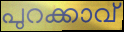
പുറക്കാവ്